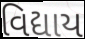
વિદ્યાય